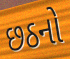
છઠનો